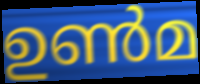
ഉൺമ